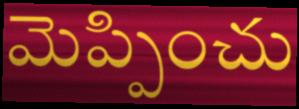
మెప్పించు